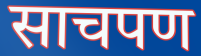
साचपण